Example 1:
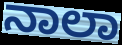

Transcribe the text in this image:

ನಾಲಾ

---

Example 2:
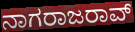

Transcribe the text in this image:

ನಾಗರಾಜರಾವ್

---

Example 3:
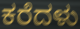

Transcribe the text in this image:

ಕರೆದಳು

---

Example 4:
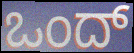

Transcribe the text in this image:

ಒಂದ್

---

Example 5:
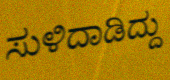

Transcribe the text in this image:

ಸುಳಿದಾಡಿದ್ದು